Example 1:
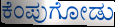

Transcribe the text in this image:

ಕೆಂಪುಗೋಡು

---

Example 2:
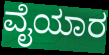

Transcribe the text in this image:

ವೈಯಾರ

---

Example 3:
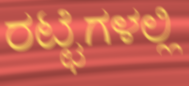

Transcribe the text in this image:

ರಟ್ಟೆಗಳಲ್ಲಿ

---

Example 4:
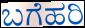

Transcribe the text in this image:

ಬಗೆಹರಿ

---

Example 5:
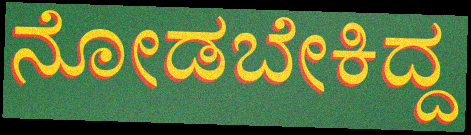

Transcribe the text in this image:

ನೋಡಬೇಕಿದ್ದ